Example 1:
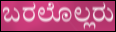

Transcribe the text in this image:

ಬರಲೊಲ್ಲರು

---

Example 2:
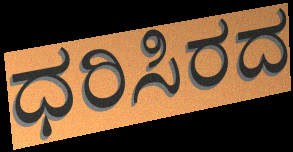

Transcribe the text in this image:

ಧರಿಸಿರದ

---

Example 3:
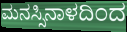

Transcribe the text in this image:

ಮನಸ್ಸಿನಾಳದಿಂದ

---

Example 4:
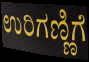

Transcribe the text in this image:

ಉರಿಗಣ್ಣಿಗೆ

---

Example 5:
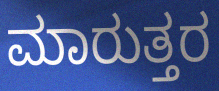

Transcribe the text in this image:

ಮಾರುತ್ತರ